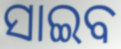
ସାଇବ